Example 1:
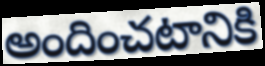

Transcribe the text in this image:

అందించటానికి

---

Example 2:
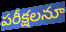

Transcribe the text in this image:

పరీక్షలనూ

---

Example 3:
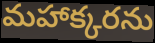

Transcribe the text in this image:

మహాక్కరను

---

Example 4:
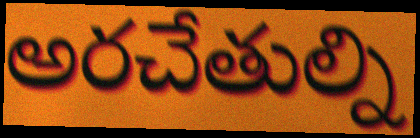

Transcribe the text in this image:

అరచేతుల్ని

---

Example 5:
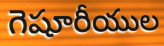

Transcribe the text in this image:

గెషూరీయుల